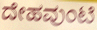
ದೇಹವುಂಟೆ